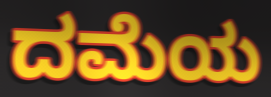
ದಮೆಯ